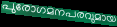
പുരോഗമനപരവുമായ